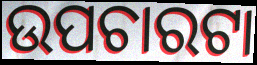
ଉପଚାରଟା